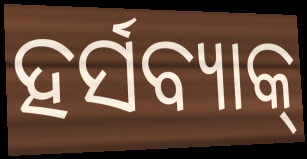
ହର୍ସବ୍ୟାକ୍